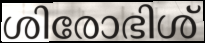
ശിരോഭിശ്